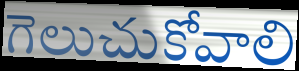
గెలుచుకోవాలి